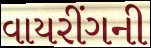
વાયરીંગની